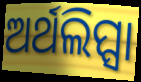
ଅର୍ଥଲିପ୍ସା